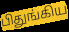
பிதுங்கிய